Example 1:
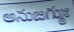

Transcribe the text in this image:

అనుజగ్ముః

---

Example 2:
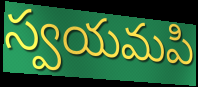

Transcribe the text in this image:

స్వయమపి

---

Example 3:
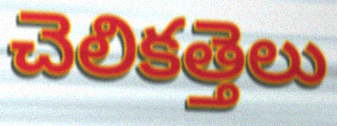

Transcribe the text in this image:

చెలికత్తెలు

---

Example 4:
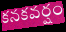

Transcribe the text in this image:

కనకవర్షం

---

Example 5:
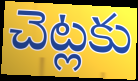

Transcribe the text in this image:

చెట్లకు